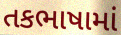
તકભાષામાં